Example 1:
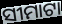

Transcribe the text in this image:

ସୀମାଟା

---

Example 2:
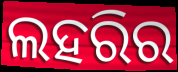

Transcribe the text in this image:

ଲହରିର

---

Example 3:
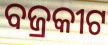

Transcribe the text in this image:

ବଜ୍ରକୀଟ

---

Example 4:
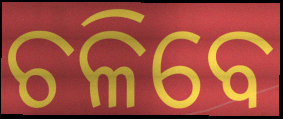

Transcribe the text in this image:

ଚଳିବେ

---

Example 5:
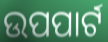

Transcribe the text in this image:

ଉପପାର୍ଟ